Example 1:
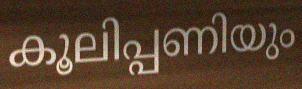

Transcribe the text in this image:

കൂലിപ്പണിയും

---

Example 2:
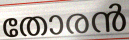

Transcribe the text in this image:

തോരൻ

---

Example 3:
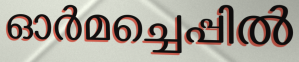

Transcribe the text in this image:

ഓർമച്ചെപ്പിൽ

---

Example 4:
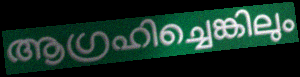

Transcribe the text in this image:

ആഗ്രഹിച്ചെങ്കിലും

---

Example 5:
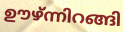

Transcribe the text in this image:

ഊഴ്ന്നിറങ്ങി